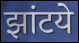
झांटये